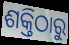
ଶକ୍ତିଠାରୁ